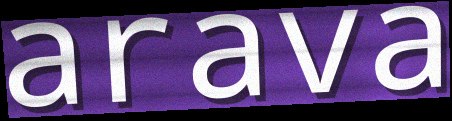
arava